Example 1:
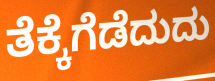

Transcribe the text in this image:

ತೆಕ್ಕೆಗೆಡೆದುದು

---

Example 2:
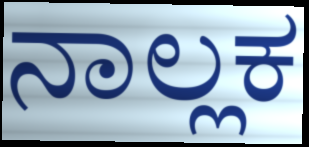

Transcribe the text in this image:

ನಾಲ್ಲಕ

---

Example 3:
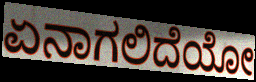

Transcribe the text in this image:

ಏನಾಗಲಿದೆಯೋ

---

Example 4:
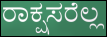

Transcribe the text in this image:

ರಾಕ್ಷಸರೆಲ್ಲ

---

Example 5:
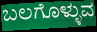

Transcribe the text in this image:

ಬಲಗೊಳ್ಳುವ